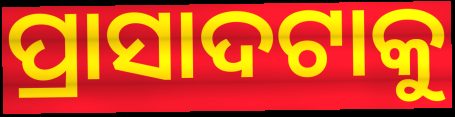
ପ୍ରାସାଦଟାକୁ